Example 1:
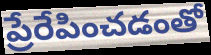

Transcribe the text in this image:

ప్రేరేపించడంతో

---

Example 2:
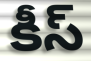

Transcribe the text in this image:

కీస్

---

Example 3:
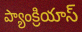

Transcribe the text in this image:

ప్యాంక్రియాస్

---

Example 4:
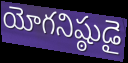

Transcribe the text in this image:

యోగనిష్ఠుడై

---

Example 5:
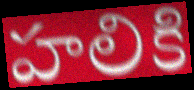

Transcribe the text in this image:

హలికి